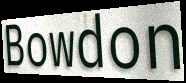
Bowdon